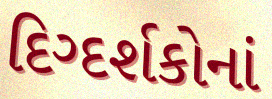
દિગ્દર્શકોનાં